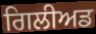
ਗਿਲੀਅਡ